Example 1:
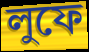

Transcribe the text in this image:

লুফে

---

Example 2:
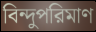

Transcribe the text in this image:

বিন্দুপরিমাণ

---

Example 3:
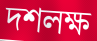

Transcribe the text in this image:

দশলক্ষ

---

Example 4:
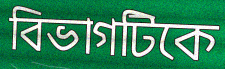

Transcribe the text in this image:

বিভাগটিকে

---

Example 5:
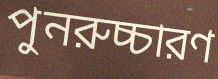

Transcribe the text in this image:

পুনরুচ্চারণ